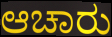
ಆಚಾರು